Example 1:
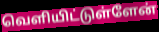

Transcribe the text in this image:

வெளியிட்டுள்ளேன்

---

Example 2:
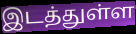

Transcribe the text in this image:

இடத்துள்ள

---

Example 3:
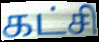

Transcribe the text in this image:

கட்சி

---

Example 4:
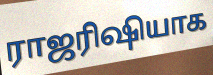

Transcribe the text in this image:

ராஜரிஷியாக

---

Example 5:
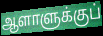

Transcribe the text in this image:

ஆளாளுக்குப்